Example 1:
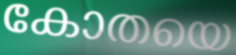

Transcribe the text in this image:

കോതയെ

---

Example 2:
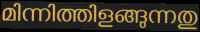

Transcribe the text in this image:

മിന്നിത്തിളങ്ങുന്നതു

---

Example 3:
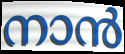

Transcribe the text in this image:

നാൻ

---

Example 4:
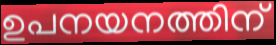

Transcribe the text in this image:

ഉപനയനത്തിന്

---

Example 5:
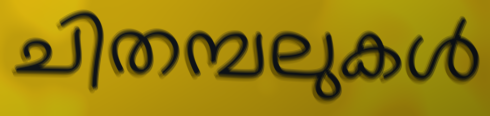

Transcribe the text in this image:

ചിതമ്പലുകൾ